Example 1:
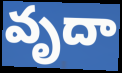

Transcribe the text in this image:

వృదా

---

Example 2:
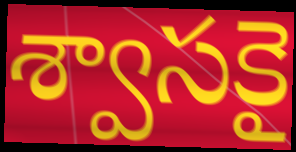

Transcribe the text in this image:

శ్వాసకై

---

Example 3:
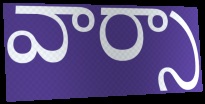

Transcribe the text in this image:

వార్సా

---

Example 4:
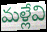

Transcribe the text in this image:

మళ్లేవి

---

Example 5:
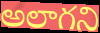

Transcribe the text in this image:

అలాగని